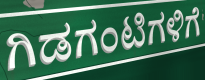
ಗಿಡಗಂಟಿಗಳಿಗೆ